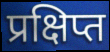
प्रक्षिप्त